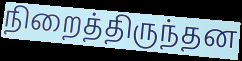
நிறைத்திருந்தன